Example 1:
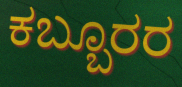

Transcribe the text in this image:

ಕಬ್ಬೂರರ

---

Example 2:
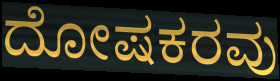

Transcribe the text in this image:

ದೋಷಕರವು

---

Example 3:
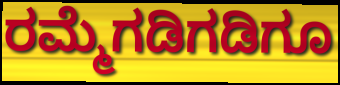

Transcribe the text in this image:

ರಮ್ಮೆಗಡಿಗಡಿಗೂ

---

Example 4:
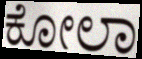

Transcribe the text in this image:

ಕೋಲಾ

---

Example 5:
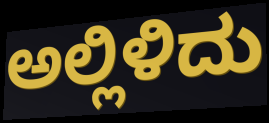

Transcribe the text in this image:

ಅಲ್ಲಿಳಿದು